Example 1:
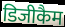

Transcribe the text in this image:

डिजीकैम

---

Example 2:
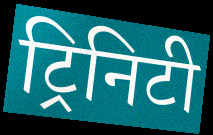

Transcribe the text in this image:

ट्रिनिटी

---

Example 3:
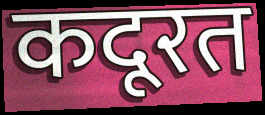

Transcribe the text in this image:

कदूरत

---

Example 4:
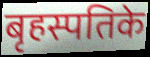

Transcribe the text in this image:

बृहस्पतिके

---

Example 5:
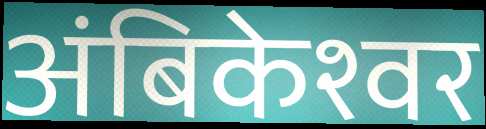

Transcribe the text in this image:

अंबिकेश्वर